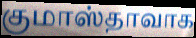
குமாஸ்தாவாக